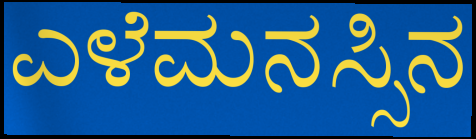
ಎಳೆಮನಸ್ಸಿನ